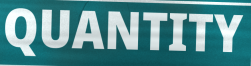
QUANTITY